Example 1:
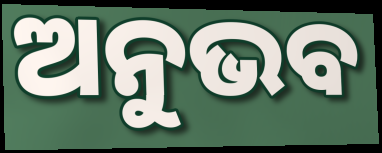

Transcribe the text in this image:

ଅନୁଭବ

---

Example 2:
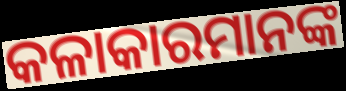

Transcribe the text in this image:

କଳାକାରମାନଙ୍କ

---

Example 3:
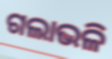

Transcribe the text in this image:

ଗଲାଭଳି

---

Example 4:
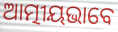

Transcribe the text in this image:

ଆତ୍ମୀୟଭାବେ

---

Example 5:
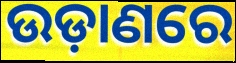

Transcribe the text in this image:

ଉଡ଼ାଣରେ